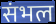
संभल